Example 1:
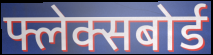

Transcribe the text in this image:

फ्लेक्सबोर्ड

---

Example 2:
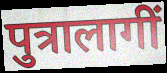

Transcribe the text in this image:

पुत्रालागीं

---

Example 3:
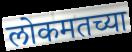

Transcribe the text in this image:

लोकमतच्या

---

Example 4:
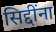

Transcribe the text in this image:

सिद्दींना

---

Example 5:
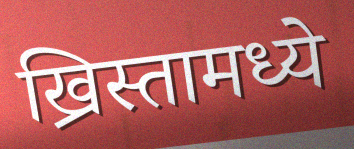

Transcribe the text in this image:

ख्रिस्तामध्ये